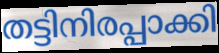
തട്ടിനിരപ്പാക്കി